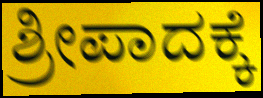
ಶ್ರೀಪಾದಕ್ಕೆ